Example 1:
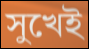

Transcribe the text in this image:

সুখেই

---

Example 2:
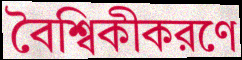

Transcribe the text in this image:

বৈশ্বিকীকরণে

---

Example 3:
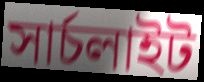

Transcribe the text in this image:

সার্চলাইট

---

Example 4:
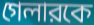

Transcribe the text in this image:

গেলারকে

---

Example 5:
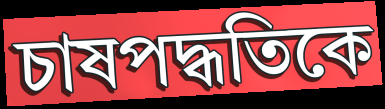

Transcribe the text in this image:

চাষপদ্ধতিকে